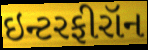
ઇન્ટરફીરૉન